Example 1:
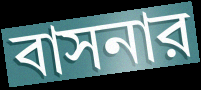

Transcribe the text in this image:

বাসনার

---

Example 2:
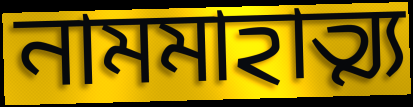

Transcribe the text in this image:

নামমাহাত্ম্য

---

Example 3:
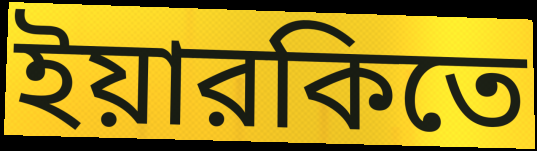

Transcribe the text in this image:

ইয়ারকিতে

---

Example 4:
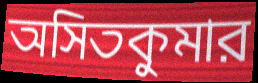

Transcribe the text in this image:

অসিতকুমার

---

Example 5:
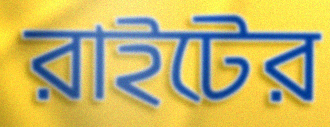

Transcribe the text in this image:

রাইটের